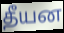
தீயன